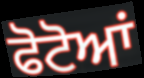
ਫੋਟੋਆਂ